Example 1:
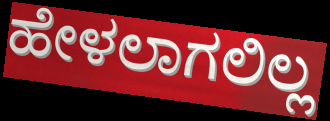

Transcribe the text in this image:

ಹೇಳಲಾಗಲಿಲ್ಲ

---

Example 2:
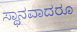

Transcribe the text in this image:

ಸ್ಥಾನವಾದರೂ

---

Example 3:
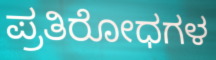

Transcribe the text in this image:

ಪ್ರತಿರೋಧಗಳ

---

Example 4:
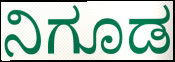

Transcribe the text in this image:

ನಿಗೂಡ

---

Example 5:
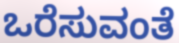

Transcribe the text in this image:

ಒರೆಸುವಂತೆ